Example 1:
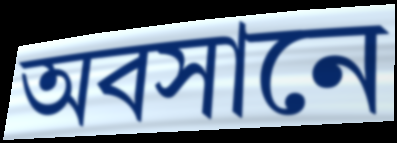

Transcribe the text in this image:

অবসানে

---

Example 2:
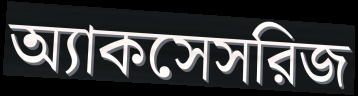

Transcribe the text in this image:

অ্যাকসেসরিজ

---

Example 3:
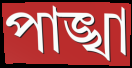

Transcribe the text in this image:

পাঙ্খা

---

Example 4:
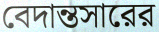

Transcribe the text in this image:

বেদান্তসারের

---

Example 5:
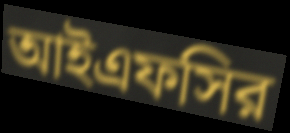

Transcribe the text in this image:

আইএফসির